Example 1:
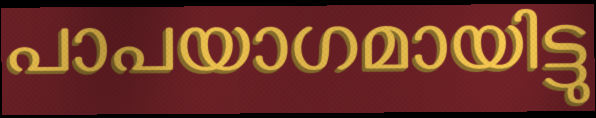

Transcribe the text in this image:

പാപയാഗമായിട്ടു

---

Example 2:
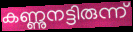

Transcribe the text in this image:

കണ്ണുനട്ടിരുന്ന്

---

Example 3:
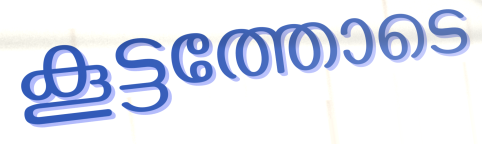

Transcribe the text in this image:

കൂട്ടത്തോടെ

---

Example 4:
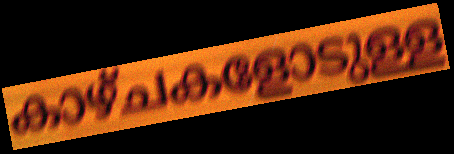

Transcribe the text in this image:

കാഴ്ചകളോടുള്ള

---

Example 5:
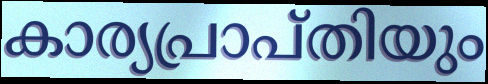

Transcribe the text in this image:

കാര്യപ്രാപ്തിയും